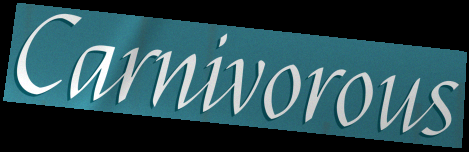
Carnivorous